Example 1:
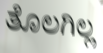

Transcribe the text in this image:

ತೊಲಗಿಲ್ಲ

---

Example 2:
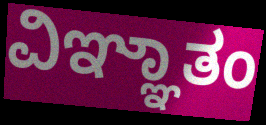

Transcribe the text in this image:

ವಿಞ್ಞಾತಂ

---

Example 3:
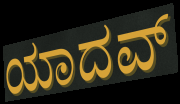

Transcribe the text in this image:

ಯಾದವ್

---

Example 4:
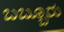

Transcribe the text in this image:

ಬಬ್ಬೂರು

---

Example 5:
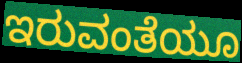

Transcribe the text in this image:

ಇರುವಂತೆಯೂ